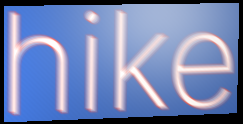
hike